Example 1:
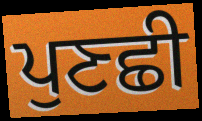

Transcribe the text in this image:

ਪੁਣਛੀ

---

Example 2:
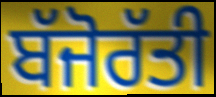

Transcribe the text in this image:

ਬੱਜੋਰੱਤੀ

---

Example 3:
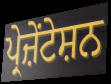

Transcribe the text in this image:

ਪ੍ਰੇਜ਼ੇਂਟੇਸ਼ਨ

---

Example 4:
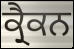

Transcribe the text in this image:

ਕ੍ਰੈਕਨ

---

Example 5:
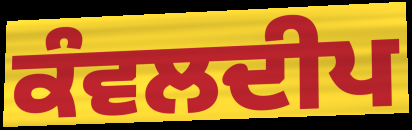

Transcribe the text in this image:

ਕੰਵਲਦੀਪ